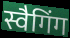
स्वैगिंग